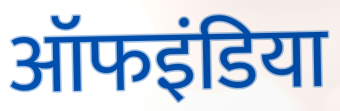
ऑफइंडिया